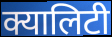
क्यालिटी